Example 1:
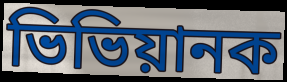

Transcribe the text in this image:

ভিভিয়ানক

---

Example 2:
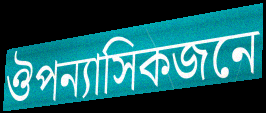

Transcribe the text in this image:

ঔপন্যাসিকজনে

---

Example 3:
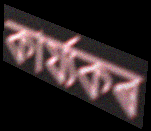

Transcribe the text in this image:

কাৰ্য্যকৰ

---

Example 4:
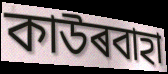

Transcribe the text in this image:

কাউৰবাহা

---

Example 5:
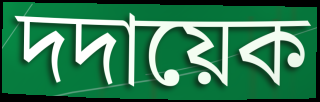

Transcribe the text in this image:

দদায়েক